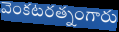
వెంకటరత్నంగారు